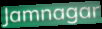
Jamnagar